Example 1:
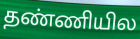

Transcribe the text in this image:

தண்ணியில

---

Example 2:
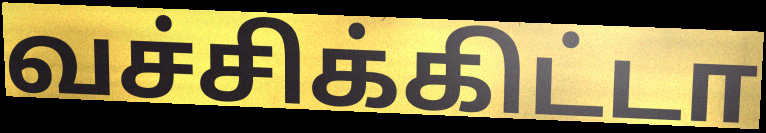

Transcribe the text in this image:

வச்சிக்கிட்டா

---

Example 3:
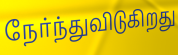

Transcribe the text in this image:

நேர்ந்துவிடுகிறது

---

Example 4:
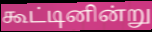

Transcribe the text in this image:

கூட்டினின்று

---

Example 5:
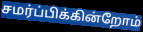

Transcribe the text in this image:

சமர்ப்பிக்கின்றோம்